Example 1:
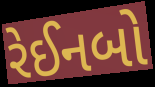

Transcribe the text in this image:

રેઈનબો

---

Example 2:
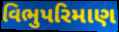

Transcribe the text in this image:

વિભુપરિમાણ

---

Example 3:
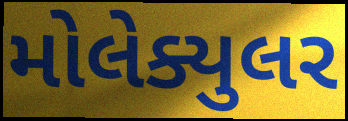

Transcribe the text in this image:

મોલેક્યુલર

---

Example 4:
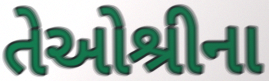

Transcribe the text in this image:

તેઓશ્રીના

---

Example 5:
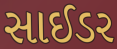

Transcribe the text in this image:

સાઈડર